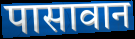
पासावान